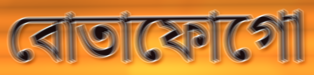
বোতাফোগো